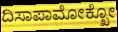
ದಿಸಾಪಾಮೋಕ್ಖೋ